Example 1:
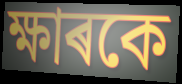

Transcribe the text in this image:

ক্ষাৰকে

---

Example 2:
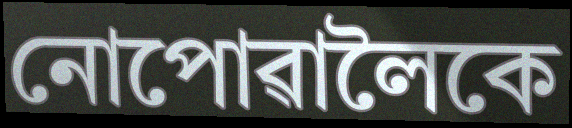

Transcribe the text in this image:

নোপোৱালৈকে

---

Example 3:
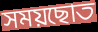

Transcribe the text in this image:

সময়ছোত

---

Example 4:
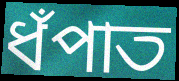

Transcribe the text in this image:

ধঁপাত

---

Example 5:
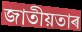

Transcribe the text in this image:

জাতীয়তাৰ